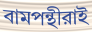
বামপন্থীরাই